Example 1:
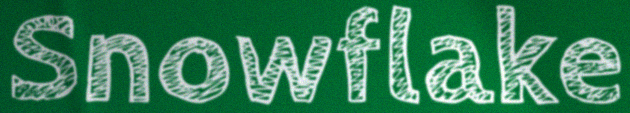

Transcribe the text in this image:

Snowflake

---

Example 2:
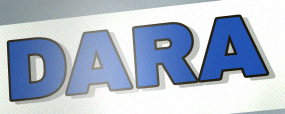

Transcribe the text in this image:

DARA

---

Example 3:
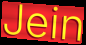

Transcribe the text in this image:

Jein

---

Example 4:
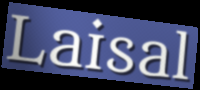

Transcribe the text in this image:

Laisal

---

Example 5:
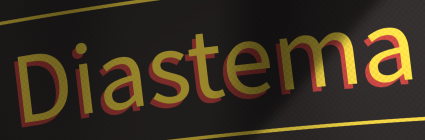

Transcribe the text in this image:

Diastema